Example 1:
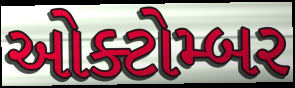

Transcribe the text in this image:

ઓક્ટોમ્બર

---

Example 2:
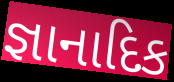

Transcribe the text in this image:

જ્ઞાનાદિક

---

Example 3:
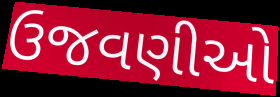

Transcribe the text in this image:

ઉજવણીઓ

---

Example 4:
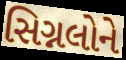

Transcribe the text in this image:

સિગ્નલોને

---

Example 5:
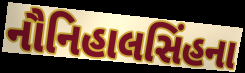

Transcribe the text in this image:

નૌનિહાલસિંહના